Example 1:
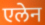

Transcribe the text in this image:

एलेन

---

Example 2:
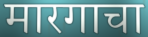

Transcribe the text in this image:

मारगाचा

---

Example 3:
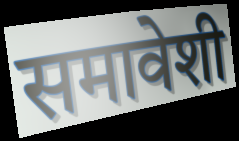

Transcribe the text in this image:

समावेशी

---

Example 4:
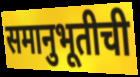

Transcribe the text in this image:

समानुभूतीची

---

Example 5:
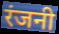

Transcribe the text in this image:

रंजनी